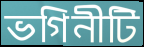
ভগিনীটি